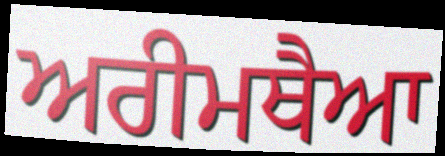
ਅਰੀਮਥੈਆ